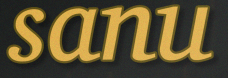
sanu